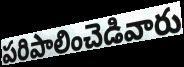
పరిపాలించెడివారు